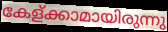
കേള്ക്കാമായിരുന്നു